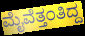
ಮೈವೆತ್ತಂತಿದ್ದ